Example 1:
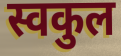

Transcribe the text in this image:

स्वकुल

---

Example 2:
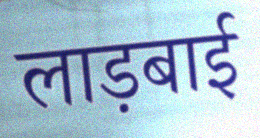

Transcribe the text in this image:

लाड़बाई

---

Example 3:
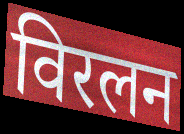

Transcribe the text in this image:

विरलन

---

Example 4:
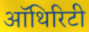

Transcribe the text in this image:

ऑथिरिटी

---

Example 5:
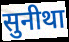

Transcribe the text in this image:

सुनीथा